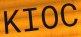
KIOC